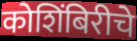
कोशिंबिरीचे